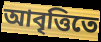
আবৃত্তিতে